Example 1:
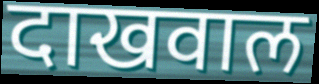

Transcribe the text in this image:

दाखवाल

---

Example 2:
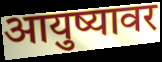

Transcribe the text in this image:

आयुष्यावर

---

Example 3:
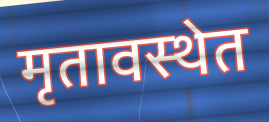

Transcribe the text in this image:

मृतावस्थेत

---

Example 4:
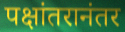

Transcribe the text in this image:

पक्षांतरानंतर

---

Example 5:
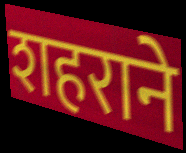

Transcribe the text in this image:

शहराने